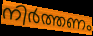
നിർത്തണം